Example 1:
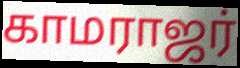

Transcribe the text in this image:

காமராஜர்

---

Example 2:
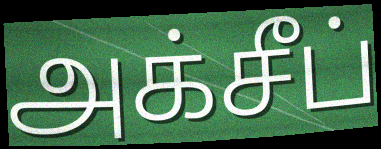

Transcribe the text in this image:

அக்சீப்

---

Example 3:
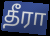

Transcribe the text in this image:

தீரா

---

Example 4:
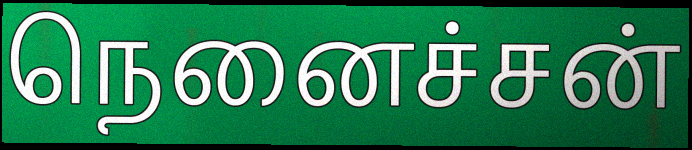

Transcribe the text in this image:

நெனைச்சன்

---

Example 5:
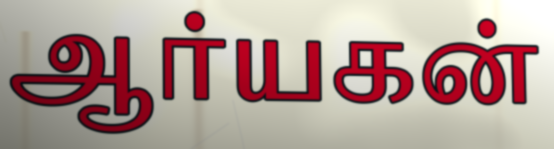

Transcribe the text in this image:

ஆர்யகன்